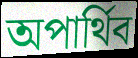
অপার্থিব